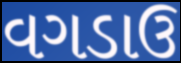
વગડાઉ